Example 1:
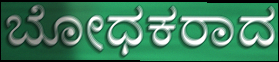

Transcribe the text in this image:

ಬೋಧಕರಾದ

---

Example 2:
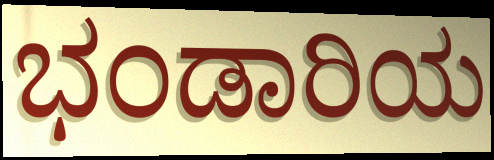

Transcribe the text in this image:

ಭಂಡಾರಿಯ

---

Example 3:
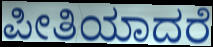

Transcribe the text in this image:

ಪೀತಿಯಾದರೆ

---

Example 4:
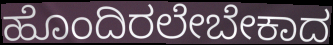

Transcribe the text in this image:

ಹೊಂದಿರಲೇಬೇಕಾದ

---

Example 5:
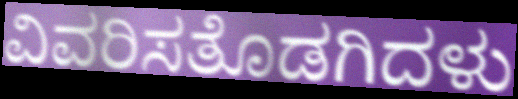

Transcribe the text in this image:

ವಿವರಿಸತೊಡಗಿದಳು